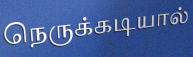
நெருக்கடியால்